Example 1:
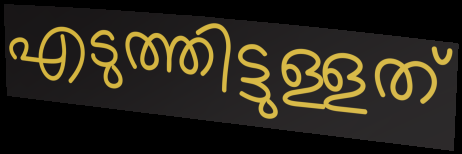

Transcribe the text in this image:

എടുത്തിട്ടുള്ളത്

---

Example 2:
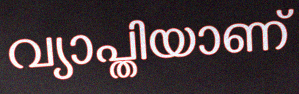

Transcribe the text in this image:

വ്യാപ്തിയാണ്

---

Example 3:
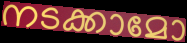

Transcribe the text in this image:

നടക്കാമോ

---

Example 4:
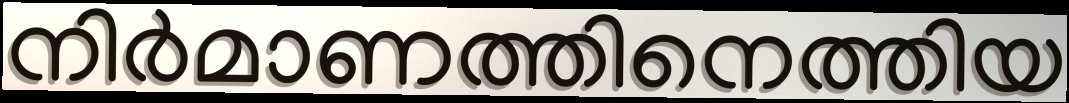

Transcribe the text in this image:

നിർമാണത്തിനെത്തിയ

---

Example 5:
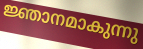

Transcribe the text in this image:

ജ്ഞാനമാകുന്നു